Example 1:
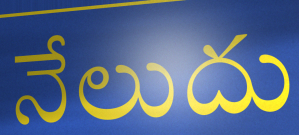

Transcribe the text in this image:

నేలుదు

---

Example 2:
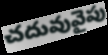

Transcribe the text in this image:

చదువువైపు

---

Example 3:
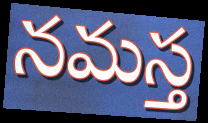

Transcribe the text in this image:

నమస్త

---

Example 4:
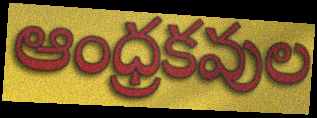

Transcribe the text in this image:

ఆంధ్రకవుల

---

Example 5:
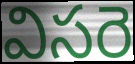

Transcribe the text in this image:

విసరె